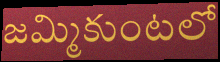
జమ్మికుంటలో